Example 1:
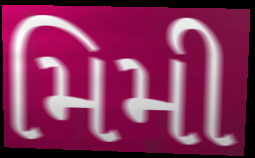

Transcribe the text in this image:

મિમી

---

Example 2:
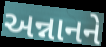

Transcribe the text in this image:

અન્નાનને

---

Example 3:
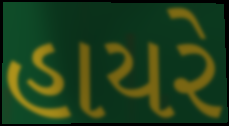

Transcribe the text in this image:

હાયરે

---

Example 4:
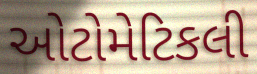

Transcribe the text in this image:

ઓટોમેટિકલી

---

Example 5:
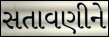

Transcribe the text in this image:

સતાવણીને